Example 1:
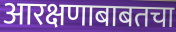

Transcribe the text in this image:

आरक्षणाबाबतचा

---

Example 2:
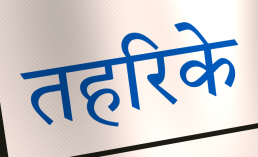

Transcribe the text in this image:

तहरिके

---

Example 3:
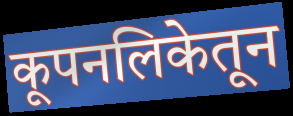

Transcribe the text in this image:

कूपनलिकेतून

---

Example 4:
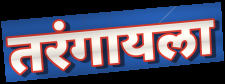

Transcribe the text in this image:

तरंगायला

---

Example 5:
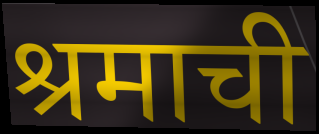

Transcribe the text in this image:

श्रमाची